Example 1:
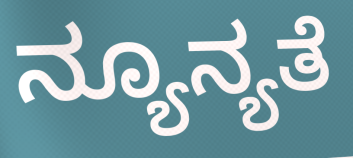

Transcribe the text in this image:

ನ್ಯೂನ್ಯತೆ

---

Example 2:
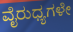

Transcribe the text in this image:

ವೈರುಧ್ಯಗಳೇ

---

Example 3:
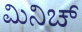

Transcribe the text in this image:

ಮಿನಿಚ್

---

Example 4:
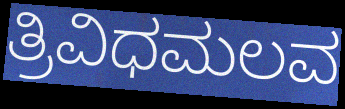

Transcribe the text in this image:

ತ್ರಿವಿಧಮಲವ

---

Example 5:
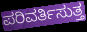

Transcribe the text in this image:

ಪರಿವರ್ತಿಸುತ್ತ